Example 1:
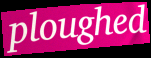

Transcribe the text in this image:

ploughed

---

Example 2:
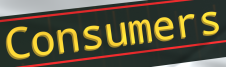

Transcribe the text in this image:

Consumers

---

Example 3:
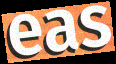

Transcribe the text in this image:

eas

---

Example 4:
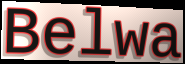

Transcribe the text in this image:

Belwa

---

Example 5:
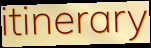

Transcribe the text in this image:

itinerary